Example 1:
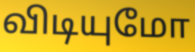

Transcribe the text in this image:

விடியுமோ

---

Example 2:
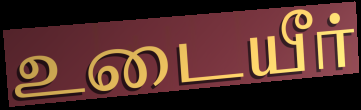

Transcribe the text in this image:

உடையீர்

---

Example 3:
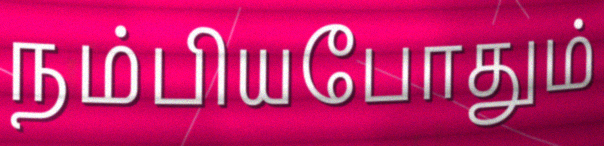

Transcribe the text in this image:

நம்பியபோதும்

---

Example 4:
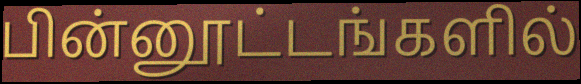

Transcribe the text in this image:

பின்னூட்டங்களில்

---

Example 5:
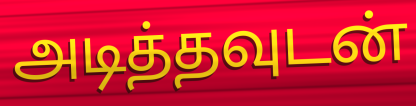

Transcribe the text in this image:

அடித்தவுடன்